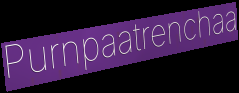
Purnpaatrenchaa